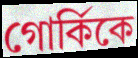
গোর্কিকে